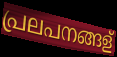
പ്രലപനങ്ങള്